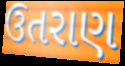
ઉતરાણ